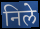
निले